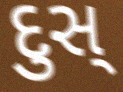
દુસ્